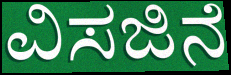
ವಿಸಜಿನೆ